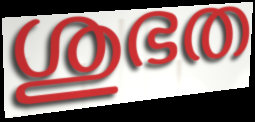
ശുഭത